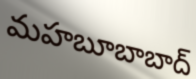
మహబూబాబాద్